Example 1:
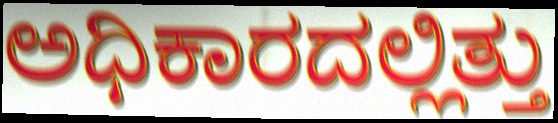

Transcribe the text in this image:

ಅಧಿಕಾರದಲ್ಲಿತ್ತು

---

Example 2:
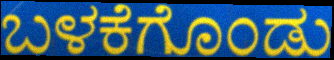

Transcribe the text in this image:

ಬಳಕೆಗೊಂಡು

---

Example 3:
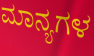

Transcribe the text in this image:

ಮಾನ್ಯಗಳ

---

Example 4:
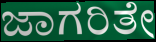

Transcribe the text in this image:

ಜಾಗರಿತೇ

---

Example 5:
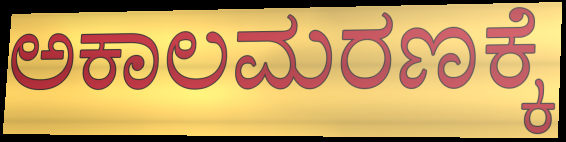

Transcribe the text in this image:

ಅಕಾಲಮರಣಕ್ಕೆ